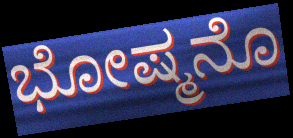
ಭೋಷ್ಮನೊ